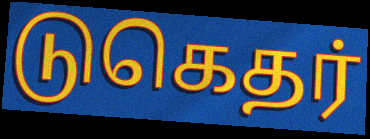
டுகெதர்